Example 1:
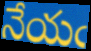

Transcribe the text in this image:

నేయఁ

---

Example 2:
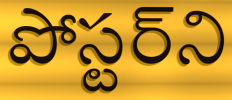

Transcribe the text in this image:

పోస్టర్‌ని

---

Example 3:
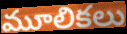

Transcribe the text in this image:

మూలికలు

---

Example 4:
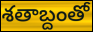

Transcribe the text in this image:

శతాబ్దంతో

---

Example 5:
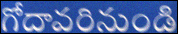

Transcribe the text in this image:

గోదావరినుండి